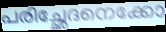
പരിച്ഛേദനെക്കോ